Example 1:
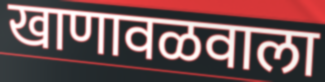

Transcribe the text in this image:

खाणावळवाला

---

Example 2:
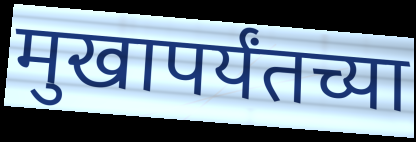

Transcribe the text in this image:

मुखापर्यंतच्या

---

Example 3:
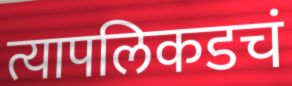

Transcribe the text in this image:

त्यापलिकडचं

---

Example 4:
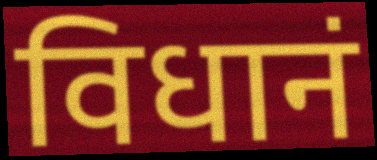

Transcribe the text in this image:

विधानं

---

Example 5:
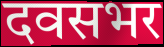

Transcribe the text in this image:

दवसभर